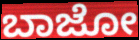
ಬಾಜೋ